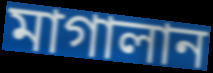
মাগালান